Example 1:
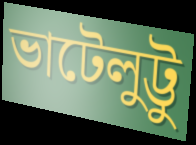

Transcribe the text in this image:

ভাটেলুট্টু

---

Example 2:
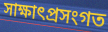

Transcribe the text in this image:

সাক্ষাৎপ্ৰসংগত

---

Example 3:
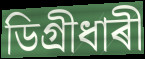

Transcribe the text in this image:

ডিগ্ৰীধাৰী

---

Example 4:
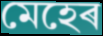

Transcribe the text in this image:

মেহেৰ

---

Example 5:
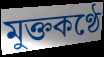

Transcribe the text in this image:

মুক্তকণ্ঠে